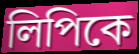
লিপিকে